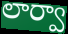
లార్వా